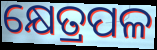
କ୍ଷେତ୍ରପଳ